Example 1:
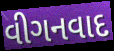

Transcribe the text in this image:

વીગનવાદ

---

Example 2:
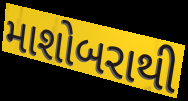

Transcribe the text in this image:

માશોબરાથી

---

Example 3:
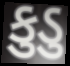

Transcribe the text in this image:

કુડુ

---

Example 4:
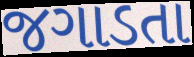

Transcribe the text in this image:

જગાડતા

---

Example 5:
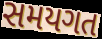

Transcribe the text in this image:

સમયગત